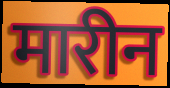
मारीन